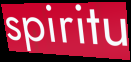
spiritu